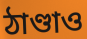
ঠাণ্ডাও